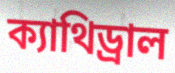
ক্যাথিড্রাল